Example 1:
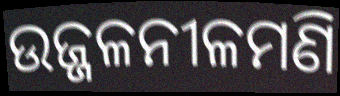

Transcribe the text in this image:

ଉଜ୍ଜଳନୀଳମଣି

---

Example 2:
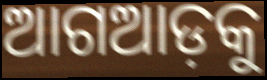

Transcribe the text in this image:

ଆଗଆଡ଼କୁ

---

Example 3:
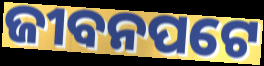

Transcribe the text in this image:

ଜୀବନପଟେ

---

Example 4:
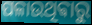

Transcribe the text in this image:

ପଳାଉଥିଵାରୁ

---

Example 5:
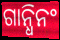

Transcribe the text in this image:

ଗାନ୍ଧିନଂ